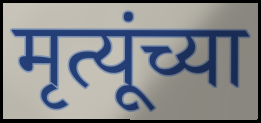
मृत्यूंच्या